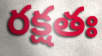
రక్షతః